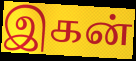
இகன்